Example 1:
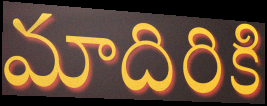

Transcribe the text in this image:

మాదిరికి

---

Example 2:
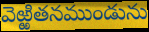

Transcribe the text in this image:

వెఱ్ఱితనముండును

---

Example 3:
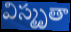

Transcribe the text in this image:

విస్మృతా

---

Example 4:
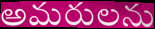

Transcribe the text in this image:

అమరులను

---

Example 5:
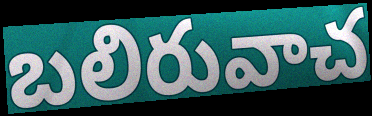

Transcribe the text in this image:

బలిరువాచ